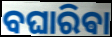
ବଘାରିଵା